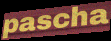
pascha